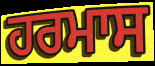
ਹਰਮਾਸ